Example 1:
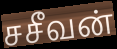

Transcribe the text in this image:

சசீவன்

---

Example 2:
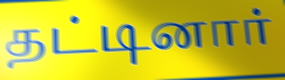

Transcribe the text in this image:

தட்டினார்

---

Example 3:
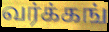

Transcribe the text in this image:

வர்க்கங்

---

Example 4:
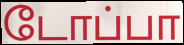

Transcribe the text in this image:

டோப்பா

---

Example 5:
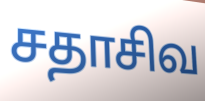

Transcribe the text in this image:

சதாசிவ